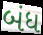
બંધ